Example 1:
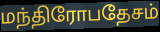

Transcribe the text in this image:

மந்திரோபதேசம்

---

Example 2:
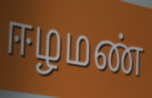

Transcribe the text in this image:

ஈழமண்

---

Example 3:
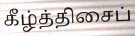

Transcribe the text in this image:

கீழ்த்திசைப்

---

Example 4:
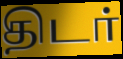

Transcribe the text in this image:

திடர்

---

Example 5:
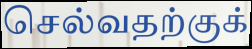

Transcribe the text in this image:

செல்வதற்குக்